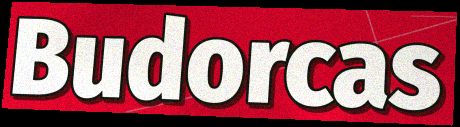
Budorcas